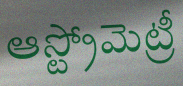
ఆస్ట్రోమెట్రీ